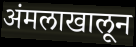
अंमलाखालून